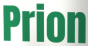
Prion